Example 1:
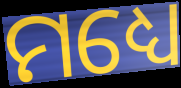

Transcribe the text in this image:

ମଧ୍ୟେ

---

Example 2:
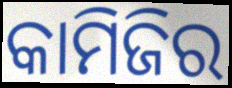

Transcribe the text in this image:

କାମିଜିର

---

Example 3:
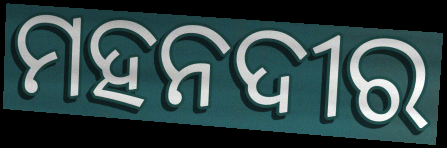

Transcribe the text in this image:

ମହନଦୀର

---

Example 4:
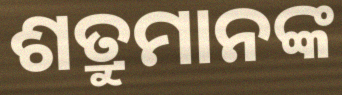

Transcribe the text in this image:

ଶତ୍ରୁମାନଙ୍କ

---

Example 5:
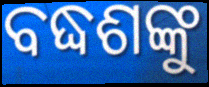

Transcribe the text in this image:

ବଦ୍ଧଶଙ୍କୁ